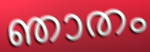
ഞാതം